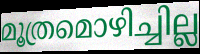
മൂത്രമൊഴിച്ചില്ല